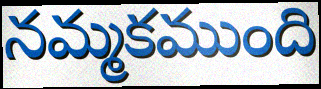
నమ్మకముంది